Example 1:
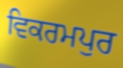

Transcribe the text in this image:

ਵਿਕਰਮਪੁਰ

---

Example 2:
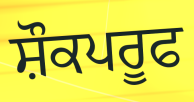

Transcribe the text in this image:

ਸ਼ੌਕਪਰੂਫ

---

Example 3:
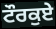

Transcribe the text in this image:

ਟੌਰਕੁਏ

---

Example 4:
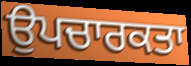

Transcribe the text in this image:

ਉਪਚਾਰਕਤਾ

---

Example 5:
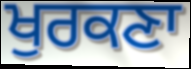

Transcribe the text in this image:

ਖੁਰਕਣਾ